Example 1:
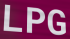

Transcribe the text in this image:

LPG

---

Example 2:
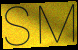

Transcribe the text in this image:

SM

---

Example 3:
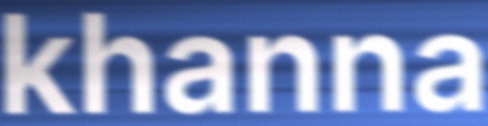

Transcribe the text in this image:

khanna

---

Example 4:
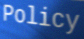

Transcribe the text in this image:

Policy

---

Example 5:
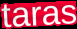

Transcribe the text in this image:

taras